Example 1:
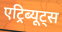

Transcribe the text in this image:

एट्रिब्यूट्स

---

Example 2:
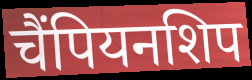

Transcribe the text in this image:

चैंपियनशिप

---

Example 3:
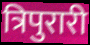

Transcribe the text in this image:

त्रिपुरारी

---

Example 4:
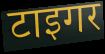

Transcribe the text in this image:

टाइगर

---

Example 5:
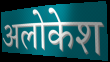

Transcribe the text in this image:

अलोकेश